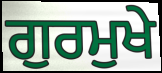
ਗੁਰਮੁਖੇ